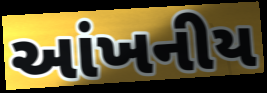
આંખનીય